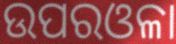
ଉପରଓଳା